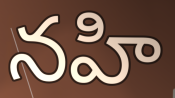
నహి